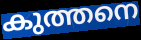
കുത്തനെ